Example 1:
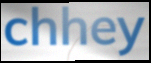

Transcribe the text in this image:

chhey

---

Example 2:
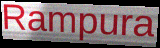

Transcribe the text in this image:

Rampura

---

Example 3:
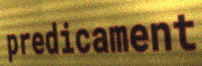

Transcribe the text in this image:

predicament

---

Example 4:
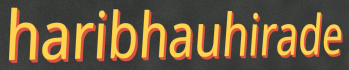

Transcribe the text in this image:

haribhauhirade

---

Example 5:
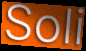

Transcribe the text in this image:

Soli